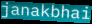
janakbhai